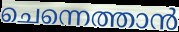
ചെന്നെത്താൻ